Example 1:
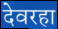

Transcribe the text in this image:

देवरहा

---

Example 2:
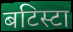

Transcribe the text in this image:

बटिस्टा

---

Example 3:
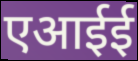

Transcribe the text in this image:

एआईई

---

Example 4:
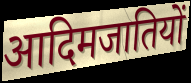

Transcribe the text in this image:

आदिमजातियों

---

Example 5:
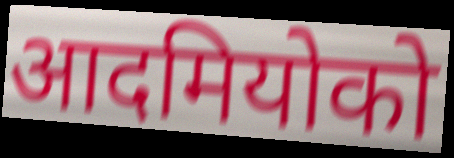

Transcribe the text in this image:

आदमियोको